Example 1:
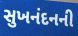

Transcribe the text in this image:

સુખનંદનની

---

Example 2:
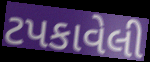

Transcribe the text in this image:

ટપકાવેલી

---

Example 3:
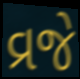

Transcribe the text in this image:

વ્રજે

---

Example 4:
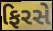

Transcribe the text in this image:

ફિરસે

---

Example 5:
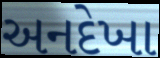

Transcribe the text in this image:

અનદેખા